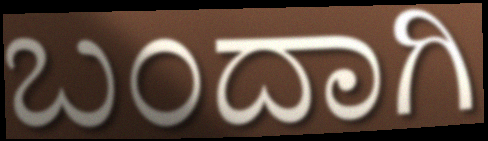
ಬಂದಾಗಿ